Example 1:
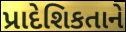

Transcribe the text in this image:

પ્રાદેશિકતાને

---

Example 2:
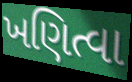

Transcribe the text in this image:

ખણિત્વા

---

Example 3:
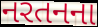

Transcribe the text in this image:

નરતનના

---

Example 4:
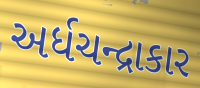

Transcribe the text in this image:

અર્ધચન્દ્રાકાર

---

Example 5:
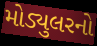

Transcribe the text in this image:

મોડ્યુલરનો